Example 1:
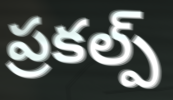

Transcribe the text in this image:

ప్రకల్ప్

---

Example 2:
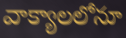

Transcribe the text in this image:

వాక్యాలలోనూ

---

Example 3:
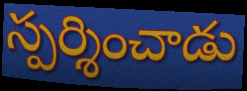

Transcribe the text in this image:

స్పర్శించాడు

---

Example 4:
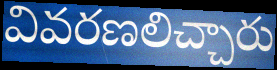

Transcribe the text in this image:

వివరణలిచ్చారు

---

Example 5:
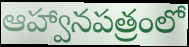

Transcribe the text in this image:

ఆహ్వానపత్రంలో